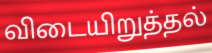
விடையிறுத்தல்